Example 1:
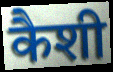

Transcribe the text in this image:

कैशी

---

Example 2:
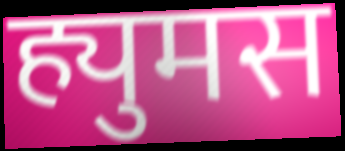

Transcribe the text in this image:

ह्युमस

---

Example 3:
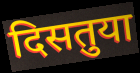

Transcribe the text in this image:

दिसतुया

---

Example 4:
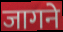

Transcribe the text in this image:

जागने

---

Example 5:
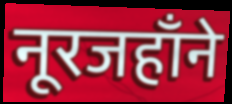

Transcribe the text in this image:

नूरजहाँने